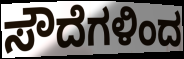
ಸೌದೆಗಳಿಂದ